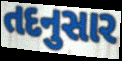
તદનુસાર